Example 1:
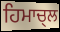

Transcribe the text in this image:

ਹਿਮਾਚ੍ਲ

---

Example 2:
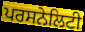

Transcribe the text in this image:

ਪਰਸਨੇਲਿਟੀ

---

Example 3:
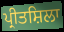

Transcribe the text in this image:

ਪ੍ਰੀਤਸ਼ਿਲਾ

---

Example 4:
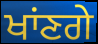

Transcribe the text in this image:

ਖਾਂਣਗੇ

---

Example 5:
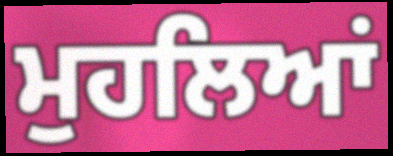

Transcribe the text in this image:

ਮੁਹਲਿਆਂ